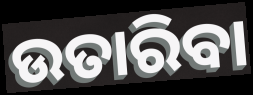
ଉତାରିବା